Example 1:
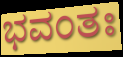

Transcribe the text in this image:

ಭವಂತಃ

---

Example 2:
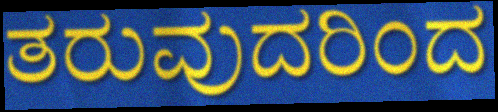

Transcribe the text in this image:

ತರುವುದರಿಂದ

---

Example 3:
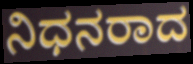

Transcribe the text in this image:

ನಿಧನರಾದ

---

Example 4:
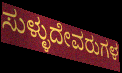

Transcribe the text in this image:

ಸುಳ್ಳುದೇವರುಗಳ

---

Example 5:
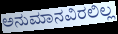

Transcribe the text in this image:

ಅನುಮಾನವಿರಲಿಲ್ಲ